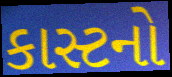
કાસ્ટનો